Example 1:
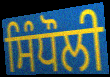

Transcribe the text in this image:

ਸਿੰਧੌਲੀ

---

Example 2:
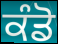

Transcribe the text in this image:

ਕੰਡੋ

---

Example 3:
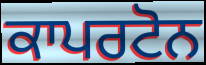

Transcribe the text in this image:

ਕਾਪਰਟੋਨ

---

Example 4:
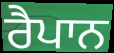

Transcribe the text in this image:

ਰੈਪਾਨ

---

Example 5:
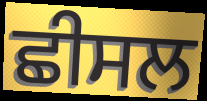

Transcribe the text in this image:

ਛੀਸਲ